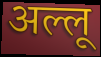
अल्लू